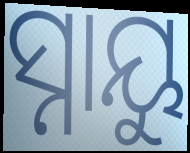
ସ୍ନାୟୁ